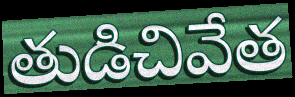
తుడిచివేత